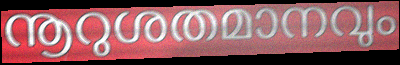
നൂറുശതമാനവും